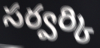
సర్వర్కి